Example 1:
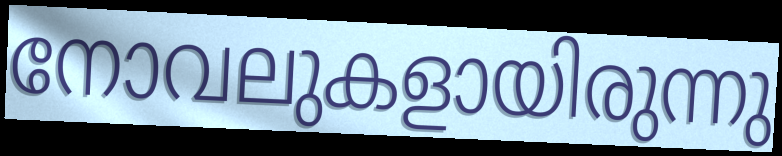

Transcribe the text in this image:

നോവലുകളായിരുന്നു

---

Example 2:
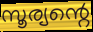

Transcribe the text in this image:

സൂര്യന്റെ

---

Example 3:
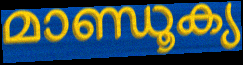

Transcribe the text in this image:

മാണ്ഡൂക്യ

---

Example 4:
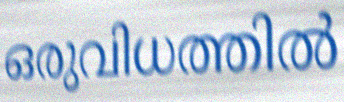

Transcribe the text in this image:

ഒരുവിധത്തിൽ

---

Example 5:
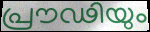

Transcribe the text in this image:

പ്രൗഢിയും